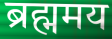
ब्रह्ममय